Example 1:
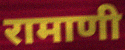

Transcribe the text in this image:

रामाणी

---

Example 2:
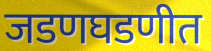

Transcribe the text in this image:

जडणघडणीत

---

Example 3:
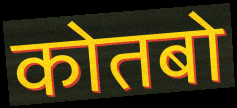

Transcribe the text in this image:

कोतबो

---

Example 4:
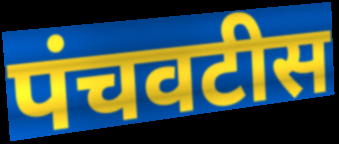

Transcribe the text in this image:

पंचवटीस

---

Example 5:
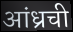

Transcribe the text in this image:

आंध्रची